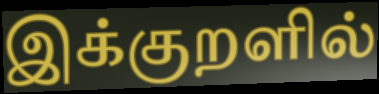
இக்குறளில்